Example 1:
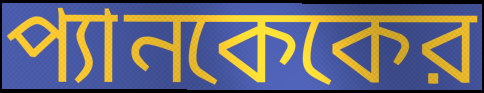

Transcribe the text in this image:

প্যানকেকের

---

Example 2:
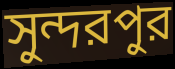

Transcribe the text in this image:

সুন্দরপুর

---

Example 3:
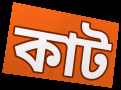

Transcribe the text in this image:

কাট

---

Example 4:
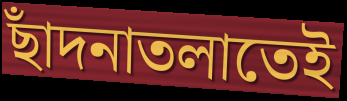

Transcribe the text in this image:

ছাঁদনাতলাতেই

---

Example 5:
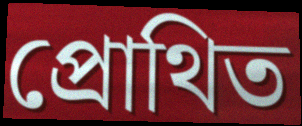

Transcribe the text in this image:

প্রোথিত